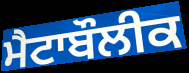
ਮੈਟਾਬੌਲੀਕ